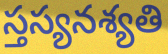
స్తస్యనశ్యతి